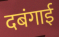
दबंगाई